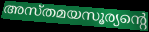
അസ്തമയസൂര്യന്റെ